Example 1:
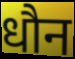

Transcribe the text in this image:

धौन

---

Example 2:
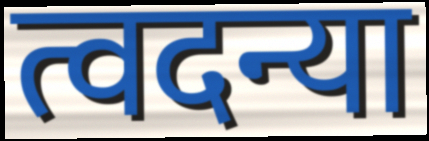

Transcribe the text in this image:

त्वदन्या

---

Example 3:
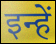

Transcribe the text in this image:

इन्‍हें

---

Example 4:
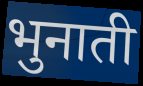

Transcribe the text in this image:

भुनाती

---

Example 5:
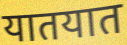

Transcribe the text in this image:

यातयात